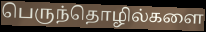
பெருந்தொழில்களை